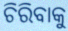
ଚିରିବାକୁ